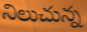
నిలుచున్న